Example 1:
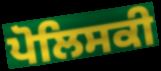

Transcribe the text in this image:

ਪੋਲਿਸਕੀ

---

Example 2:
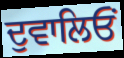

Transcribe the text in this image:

ਦੁਵਾਲਿਓਂ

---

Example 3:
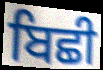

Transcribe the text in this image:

ਬਿਛੀ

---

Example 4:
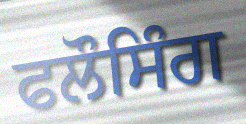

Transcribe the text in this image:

ਫਲੌਸਿੰਗ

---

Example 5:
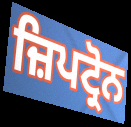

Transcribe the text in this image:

ਜ਼ਿਪਟ੍ਰੋਨ